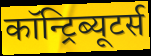
कॉन्ट्रिब्यूटर्स